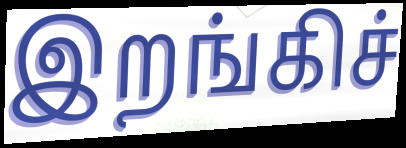
இறங்கிச்